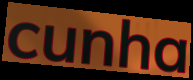
cunha